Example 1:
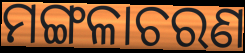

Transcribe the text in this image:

ମଙ୍ଗଳାଚରଣ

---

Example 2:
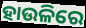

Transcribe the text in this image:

ହାଉଳିରେ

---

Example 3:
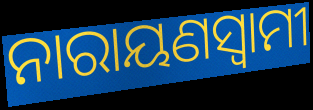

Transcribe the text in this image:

ନାରାୟଣସ୍ଵାମୀ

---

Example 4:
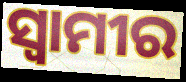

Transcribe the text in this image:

ସ୍ଵାମୀର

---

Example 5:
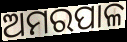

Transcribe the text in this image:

ଅମରପାଳ